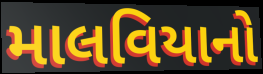
માલવિયાનો